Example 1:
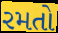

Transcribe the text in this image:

રમતો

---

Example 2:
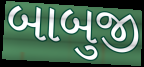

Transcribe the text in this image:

બાબુજી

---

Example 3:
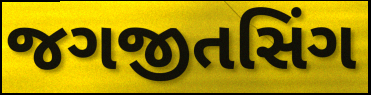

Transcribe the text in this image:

જગજીતસિંગ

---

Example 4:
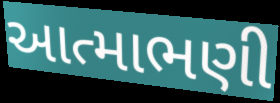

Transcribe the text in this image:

આત્માભણી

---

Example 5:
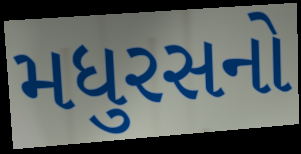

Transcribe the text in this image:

મધુરસનો